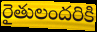
రైతులందరికి